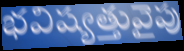
భవిష్యత్తువైపు